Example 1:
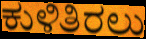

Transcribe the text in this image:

ಕುಳಿತಿರಲು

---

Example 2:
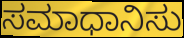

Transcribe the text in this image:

ಸಮಾಧಾನಿಸು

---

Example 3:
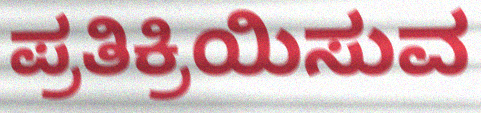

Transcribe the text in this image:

ಪ್ರತಿಕ್ರಿಯಿಸುವ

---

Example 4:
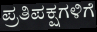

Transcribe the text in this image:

ಪ್ರತಿಪಕ್ಷಗಳಿಗೆ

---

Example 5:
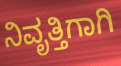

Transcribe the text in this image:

ನಿವೃತ್ತಿಗಾಗಿ